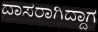
ದಾಸರಾಗಿದ್ದಾಗ